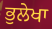
ਭੁਲੇਖਾ